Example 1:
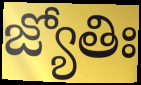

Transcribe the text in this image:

జ్యోతిః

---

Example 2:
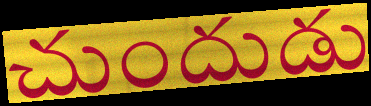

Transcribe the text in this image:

చుందుడు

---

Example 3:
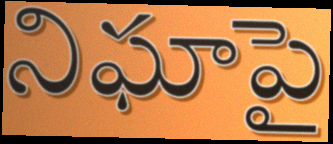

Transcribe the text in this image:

నిఘాపై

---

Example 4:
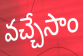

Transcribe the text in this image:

వచ్చేసాం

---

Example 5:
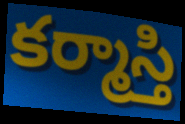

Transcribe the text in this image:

కర్మాస్తి